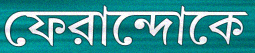
ফেরান্দোকে